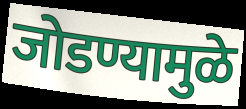
जोडण्यामुळे